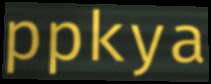
ppkya